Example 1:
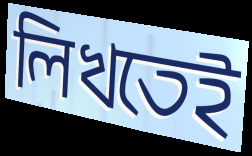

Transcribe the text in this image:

লিখতেই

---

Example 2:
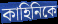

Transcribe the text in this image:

কাহিনিকে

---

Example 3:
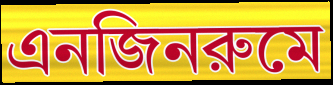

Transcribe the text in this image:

এনজিনরুমে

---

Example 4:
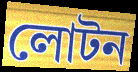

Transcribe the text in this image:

লোটন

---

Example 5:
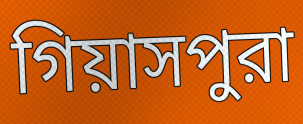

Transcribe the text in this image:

গিয়াসপুরা